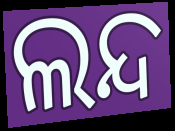
ଲନ୍ଦ